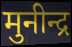
मुनीन्द्र